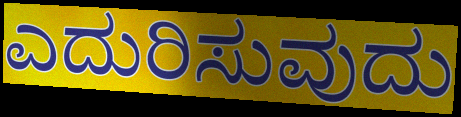
ಎದುರಿಸುವುದು